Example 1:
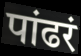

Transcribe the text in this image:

पांढरं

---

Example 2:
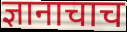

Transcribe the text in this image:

ज्ञानाचाच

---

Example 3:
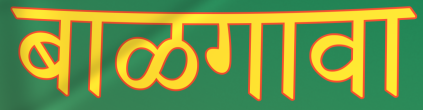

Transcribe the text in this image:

बाळगावा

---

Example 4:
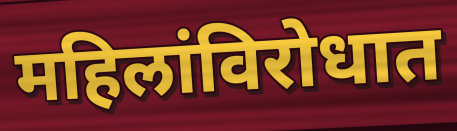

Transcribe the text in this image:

महिलांविरोधात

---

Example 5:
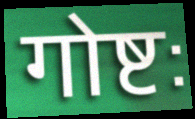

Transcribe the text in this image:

गोष्टः